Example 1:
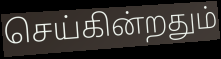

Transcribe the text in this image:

செய்கின்றதும்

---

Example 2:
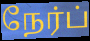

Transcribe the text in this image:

நேர்ப்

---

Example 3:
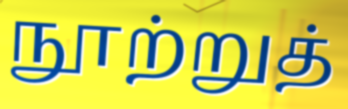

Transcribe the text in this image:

நூற்றுத்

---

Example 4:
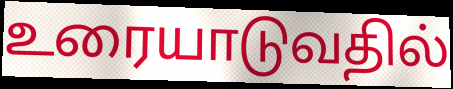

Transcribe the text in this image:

உரையாடுவதில்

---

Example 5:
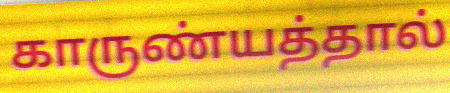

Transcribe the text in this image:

காருண்யத்தால்